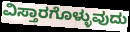
ವಿಸ್ತಾರಗೊಳ್ಳುವುದು